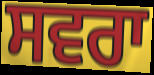
ਸਵਰਾ